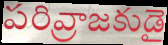
పరివ్రాజకుడై